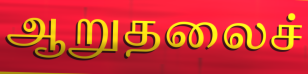
ஆறுதலைச்